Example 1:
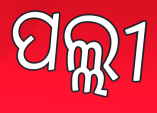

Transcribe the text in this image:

ପଲ୍ଲୀ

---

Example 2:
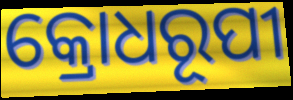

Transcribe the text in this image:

କ୍ରୋଧରୂପୀ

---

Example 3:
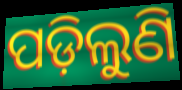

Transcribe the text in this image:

ପଡ଼ିଲୁଣି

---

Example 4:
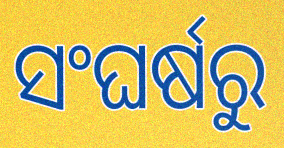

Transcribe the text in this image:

ସଂଘର୍ଷରୁ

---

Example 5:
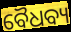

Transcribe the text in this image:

ବୈଧବ୍ୟ